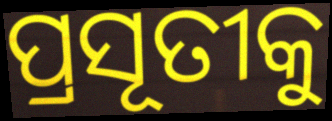
ପ୍ରସୂତୀକୁ